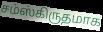
சம்ஸ்கிருதமாக